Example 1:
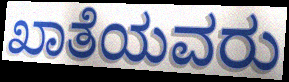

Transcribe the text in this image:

ಖಾತೆಯವರು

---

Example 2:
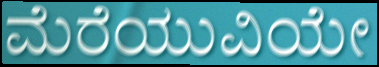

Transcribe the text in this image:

ಮೆರೆಯುವಿಯೇ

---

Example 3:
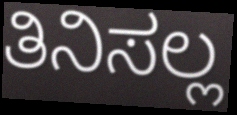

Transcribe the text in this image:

ತಿನಿಸಲ್ಲ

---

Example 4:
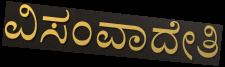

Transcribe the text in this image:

ವಿಸಂವಾದೇತಿ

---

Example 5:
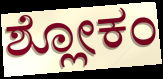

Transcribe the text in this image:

ಶ್ಲೋಕಂ